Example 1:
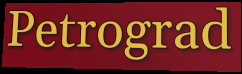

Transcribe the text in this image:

Petrograd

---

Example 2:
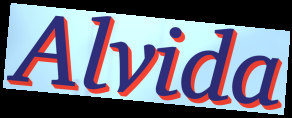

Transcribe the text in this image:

Alvida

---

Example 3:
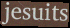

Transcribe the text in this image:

jesuits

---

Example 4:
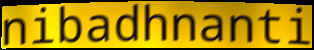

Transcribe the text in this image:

nibadhnanti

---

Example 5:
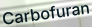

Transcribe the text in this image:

Carbofuran